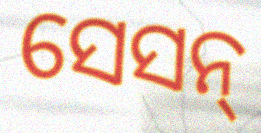
ସେସନ୍